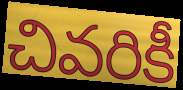
చివరికీ